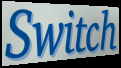
Switch